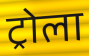
ट्रोला